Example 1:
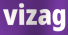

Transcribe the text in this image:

vizag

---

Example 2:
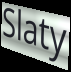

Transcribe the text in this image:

Slaty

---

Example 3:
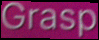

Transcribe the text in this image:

Grasp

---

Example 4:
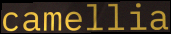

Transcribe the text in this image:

camellia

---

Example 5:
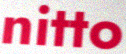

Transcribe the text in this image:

nitto